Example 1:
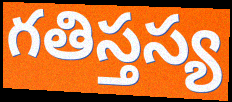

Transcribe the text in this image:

గతిస్తస్య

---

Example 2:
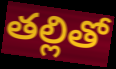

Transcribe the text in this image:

తల్లితో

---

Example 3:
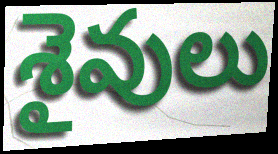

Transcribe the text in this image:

శైవులు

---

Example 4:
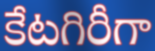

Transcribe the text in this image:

కేటగిరీగా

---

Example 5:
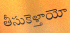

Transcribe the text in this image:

తీసుకెళ్తాయో